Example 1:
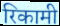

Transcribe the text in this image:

रिकामी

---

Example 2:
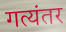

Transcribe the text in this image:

गत्यंतर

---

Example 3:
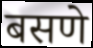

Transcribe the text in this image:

बसणे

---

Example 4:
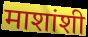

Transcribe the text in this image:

माशांशी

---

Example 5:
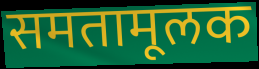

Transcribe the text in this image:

समतामूलक